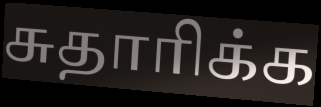
சுதாரிக்க